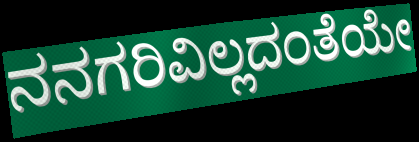
ನನಗರಿವಿಲ್ಲದಂತೆಯೇ